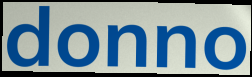
donno